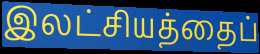
இலட்சியத்தைப்